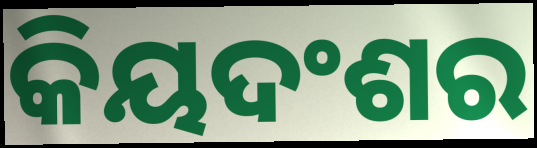
କିୟଦଂଶର